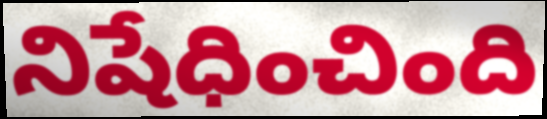
నిషేధించింది